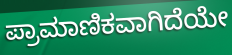
ಪ್ರಾಮಾಣಿಕವಾಗಿದೆಯೇ